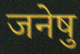
जनेषु